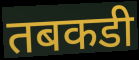
तबकडी